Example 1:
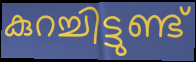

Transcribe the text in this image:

കുറച്ചിട്ടുണ്ട്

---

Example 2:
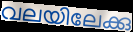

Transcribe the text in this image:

വലയിലേക്കു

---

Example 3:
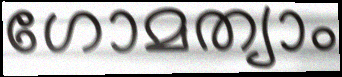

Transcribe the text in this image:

ഗോമത്യാം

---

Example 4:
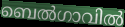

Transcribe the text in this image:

ബെൽഗാവിൽ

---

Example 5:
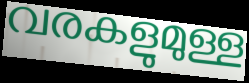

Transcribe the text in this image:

വരകളുമുള്ള